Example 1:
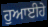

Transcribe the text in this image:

ਹੁਆਈਹੇ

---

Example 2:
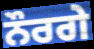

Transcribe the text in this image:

ਨੌਰਗੇ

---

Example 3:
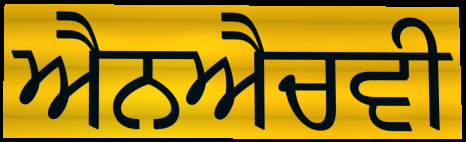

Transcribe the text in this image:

ਐਨਐਚਵੀ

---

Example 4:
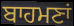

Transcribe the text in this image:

ਬਾਹਮਣਾਂ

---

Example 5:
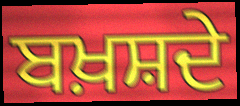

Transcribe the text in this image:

ਬਖ਼ਸ਼ਦੇ